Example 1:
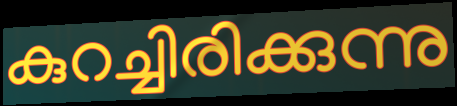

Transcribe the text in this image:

കുറച്ചിരിക്കുന്നു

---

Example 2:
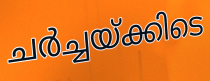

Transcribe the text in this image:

ചർച്ചയ്ക്കിടെ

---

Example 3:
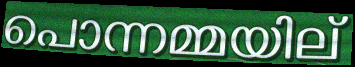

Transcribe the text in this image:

പൊന്നമ്മയില്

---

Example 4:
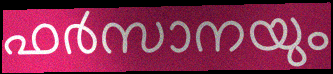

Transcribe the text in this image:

ഫർസാനയും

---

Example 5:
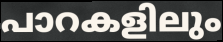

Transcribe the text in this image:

പാറകളിലും